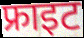
फ्राइट